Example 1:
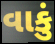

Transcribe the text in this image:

વાકું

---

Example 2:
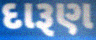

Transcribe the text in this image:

દારૂણ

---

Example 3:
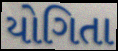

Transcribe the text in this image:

યોગિતા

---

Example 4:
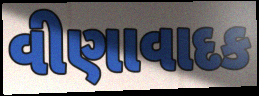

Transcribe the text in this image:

વીણાવાદક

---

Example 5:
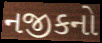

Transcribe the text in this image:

નજીકનો